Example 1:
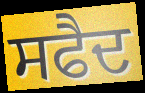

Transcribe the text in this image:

ਸਫੈਦ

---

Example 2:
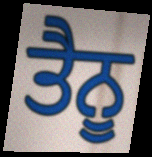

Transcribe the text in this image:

ਤੈਨੂ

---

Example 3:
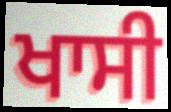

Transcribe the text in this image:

ਖਾਸੀ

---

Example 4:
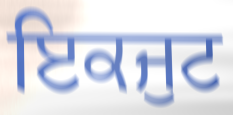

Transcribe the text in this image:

ਇਕਜੁਟ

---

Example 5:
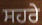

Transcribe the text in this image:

ਸਹਰੇ